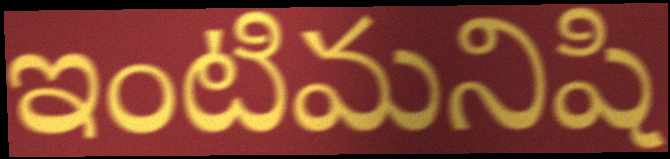
ఇంటిమనిషి